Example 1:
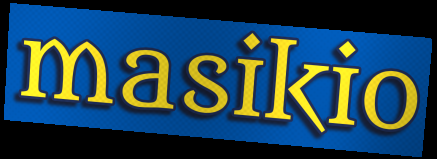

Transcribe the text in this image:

masikio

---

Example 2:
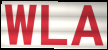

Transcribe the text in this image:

WLA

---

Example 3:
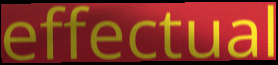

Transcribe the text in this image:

effectual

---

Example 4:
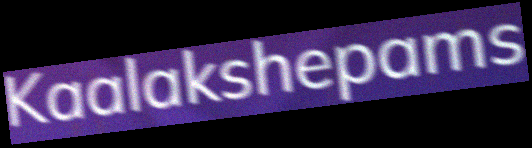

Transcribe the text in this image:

Kaalakshepams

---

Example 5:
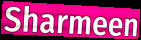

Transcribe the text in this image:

Sharmeen